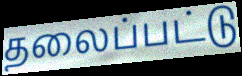
தலைப்பட்டு